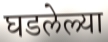
घडलेल्या